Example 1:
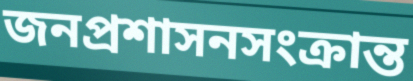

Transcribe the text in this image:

জনপ্রশাসনসংক্রান্ত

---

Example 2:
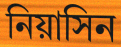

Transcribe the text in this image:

নিয়াসিন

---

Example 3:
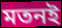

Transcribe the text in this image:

মতনই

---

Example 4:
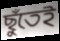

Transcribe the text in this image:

ছুঁতেই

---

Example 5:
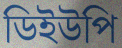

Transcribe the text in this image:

ডিইউপি